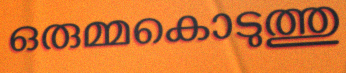
ഒരുമ്മകൊടുത്തു